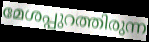
മേശപ്പുറത്തിരുന്ന